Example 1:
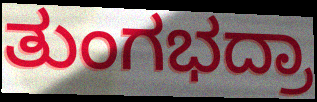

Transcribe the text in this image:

ತುಂಗಭದ್ರಾ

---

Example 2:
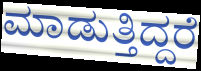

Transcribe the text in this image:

ಮಾಡುತ್ತಿದ್ದರೆ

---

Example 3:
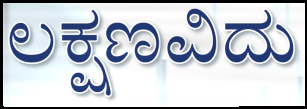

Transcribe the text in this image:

ಲಕ್ಷಣವಿದು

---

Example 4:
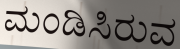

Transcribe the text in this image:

ಮಂಡಿಸಿರುವ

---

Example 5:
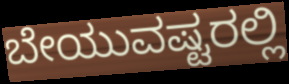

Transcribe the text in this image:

ಬೇಯುವಷ್ಟರಲ್ಲಿ